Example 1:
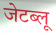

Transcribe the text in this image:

जेटब्लू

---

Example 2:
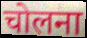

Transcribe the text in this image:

चोलना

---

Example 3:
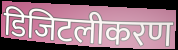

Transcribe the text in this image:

डिजिटलीकरण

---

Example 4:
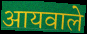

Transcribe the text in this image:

आयवाले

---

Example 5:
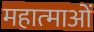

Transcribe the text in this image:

महात्‍माओं